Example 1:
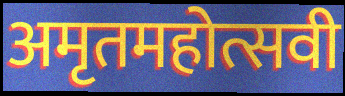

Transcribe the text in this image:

अमृतमहोत्सवी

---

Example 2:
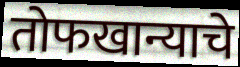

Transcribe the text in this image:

तोफखान्याचे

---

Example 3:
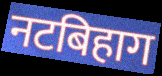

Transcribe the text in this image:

नटबिहाग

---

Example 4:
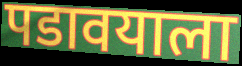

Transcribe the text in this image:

पडावयाला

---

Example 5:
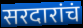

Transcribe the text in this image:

सरदारांचं